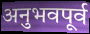
अनुभवपूर्व